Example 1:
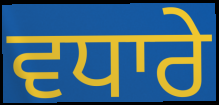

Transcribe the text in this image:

ਵਧਾਰੇ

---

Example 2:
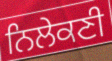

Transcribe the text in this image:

ਨਿਲੇਕਣੀ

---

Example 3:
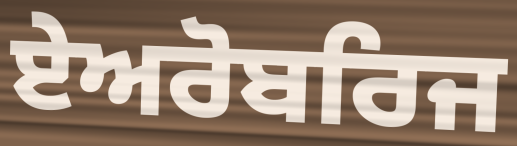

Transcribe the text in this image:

ਏਅਰੋਬਰਿਜ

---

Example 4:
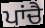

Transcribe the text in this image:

ਪਾਂਚੈ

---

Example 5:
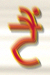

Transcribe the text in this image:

ਟੈੰ